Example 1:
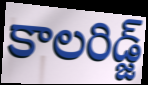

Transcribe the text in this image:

కాలరిడ్జ్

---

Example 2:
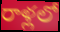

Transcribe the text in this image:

రాళ్లలో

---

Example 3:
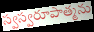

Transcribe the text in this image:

స్వస్వరూపాత్మను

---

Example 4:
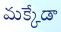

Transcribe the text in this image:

మక్కేడా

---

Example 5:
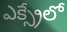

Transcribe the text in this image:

ఎక్స్రేలో